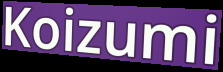
Koizumi